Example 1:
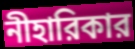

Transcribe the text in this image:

নীহারিকার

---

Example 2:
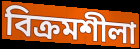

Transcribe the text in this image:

বিক্রমশীলা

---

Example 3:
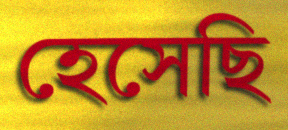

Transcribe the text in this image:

হেসেছি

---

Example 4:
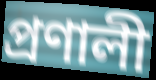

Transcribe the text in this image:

প্রণালী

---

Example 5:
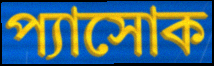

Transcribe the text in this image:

প্যাসোক